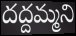
దద్దమ్మని